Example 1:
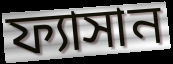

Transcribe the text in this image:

ফ্যাসান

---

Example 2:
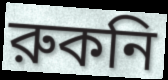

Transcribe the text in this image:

রুকনি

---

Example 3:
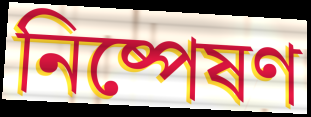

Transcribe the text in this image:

নিষ্পেষণ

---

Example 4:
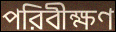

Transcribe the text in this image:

পরিবীক্ষণ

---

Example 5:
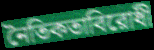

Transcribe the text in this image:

নৈতিকতাবিরোধী